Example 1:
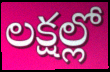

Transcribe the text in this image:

లక్షల్లో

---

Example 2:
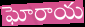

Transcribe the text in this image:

ఘోరాయ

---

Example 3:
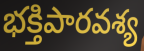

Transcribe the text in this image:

భక్తిపారవశ్య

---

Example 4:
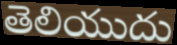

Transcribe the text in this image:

తెలియుదు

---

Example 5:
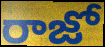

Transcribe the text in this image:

రాజో